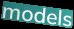
models